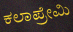
ಕಲಾಪ್ರೇಮಿ